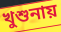
খুশুনায়